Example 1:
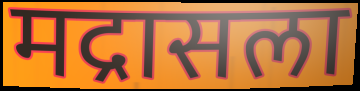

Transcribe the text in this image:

मद्रासला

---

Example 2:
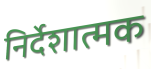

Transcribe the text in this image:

निर्देशात्मक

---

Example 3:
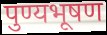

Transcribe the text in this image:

पुण्यभूषण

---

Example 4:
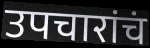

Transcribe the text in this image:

उपचारांचं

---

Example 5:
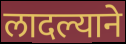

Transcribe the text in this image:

लादल्याने